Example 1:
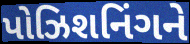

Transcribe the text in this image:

પોઝિશનિંગને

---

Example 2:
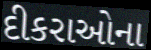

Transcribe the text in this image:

દીકરાઓના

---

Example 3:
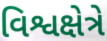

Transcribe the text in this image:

વિશ્વક્ષેત્રે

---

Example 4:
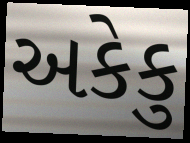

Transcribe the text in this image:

અકેકુ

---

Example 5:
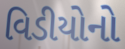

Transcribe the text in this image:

વિડીયોનો